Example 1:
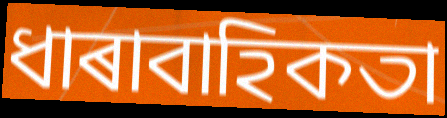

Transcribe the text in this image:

ধাৰাবাহিকতা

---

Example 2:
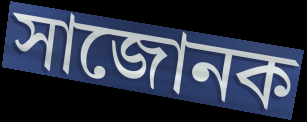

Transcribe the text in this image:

সাজোনক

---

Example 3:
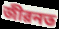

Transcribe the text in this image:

জীৱনত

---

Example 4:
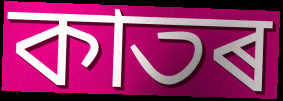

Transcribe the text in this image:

কাতৰ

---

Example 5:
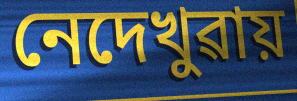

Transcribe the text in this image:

নেদেখুৱায়